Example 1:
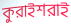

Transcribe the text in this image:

কুরাইশরাই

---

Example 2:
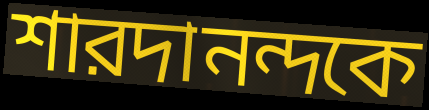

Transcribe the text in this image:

শারদানন্দকে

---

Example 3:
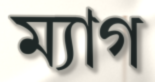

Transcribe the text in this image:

ম্যাগ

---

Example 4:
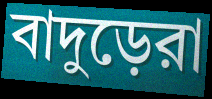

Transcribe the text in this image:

বাদুড়েরা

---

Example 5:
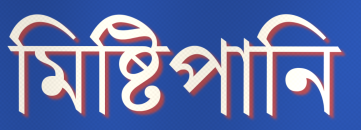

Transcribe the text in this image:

মিষ্টিপানি